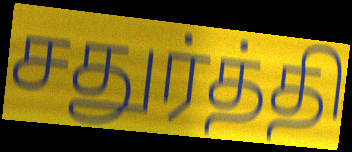
சதுர்த்தி